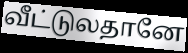
வீட்டுலதானே